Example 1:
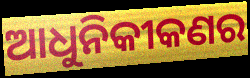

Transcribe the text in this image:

ଆଧୁନିକୀକଣର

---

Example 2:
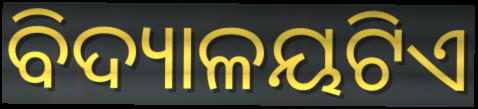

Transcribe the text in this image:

ବିଦ୍ୟାଳୟଟିଏ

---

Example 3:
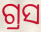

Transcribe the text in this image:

ଗ୍ରସ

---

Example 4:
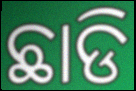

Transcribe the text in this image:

ଛାଡି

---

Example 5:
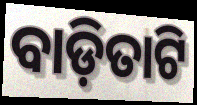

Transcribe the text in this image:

ବାଡ଼ିତାଟି